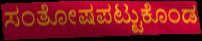
ಸಂತೋಷಪಟ್ಟುಕೊಂಡ